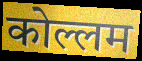
कोल्लम